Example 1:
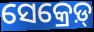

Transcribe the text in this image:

ସେକ୍ରେଡ଼୍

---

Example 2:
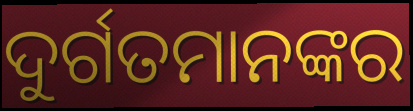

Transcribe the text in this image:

ଦୁର୍ଗତମାନଙ୍କର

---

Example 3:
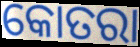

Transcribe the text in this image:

କୋତରା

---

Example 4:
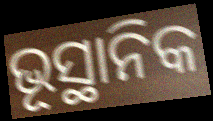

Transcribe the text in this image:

ଭୂସ୍ଥାନିକ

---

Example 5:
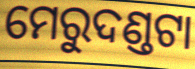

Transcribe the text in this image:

ମେରୁଦଣ୍ଡଟା